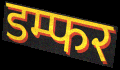
डम्फर